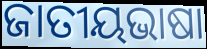
ଜାତୀୟଭାଷା